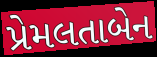
પ્રેમલતાબેન